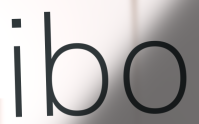
ibo